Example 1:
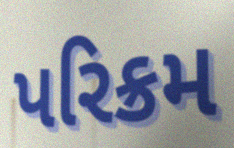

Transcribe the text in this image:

પરિક્રમ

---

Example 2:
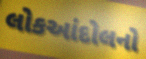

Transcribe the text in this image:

લોકઆંદોલનો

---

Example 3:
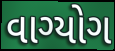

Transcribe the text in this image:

વાગ્યોગ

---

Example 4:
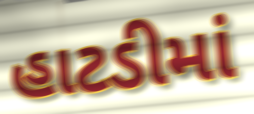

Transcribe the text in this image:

હાટડીમાં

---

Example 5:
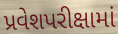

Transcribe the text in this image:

પ્રવેશપરીક્ષામાં